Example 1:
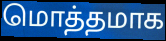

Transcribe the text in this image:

மொத்தமாக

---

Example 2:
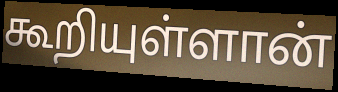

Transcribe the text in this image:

கூறியுள்ளான்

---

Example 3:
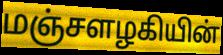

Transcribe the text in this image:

மஞ்சளழகியின்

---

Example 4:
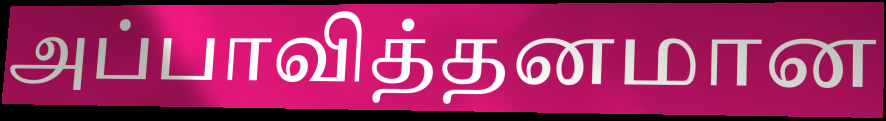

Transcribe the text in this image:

அப்பாவித்தனமான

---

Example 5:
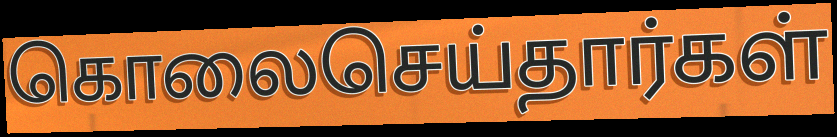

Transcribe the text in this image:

கொலைசெய்தார்கள்